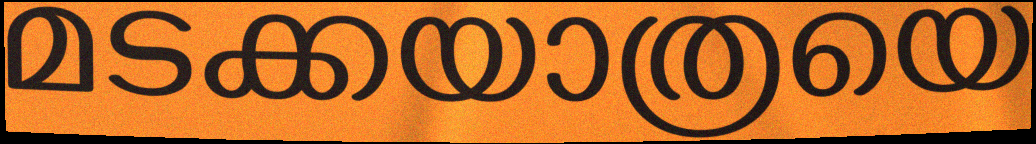
മടക്കയാത്രയെ